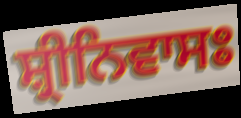
ਸ਼੍ਰੀਨਿਵਾਸਃ